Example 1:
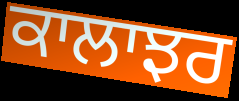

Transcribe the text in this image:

ਕਾਲਾਝਰ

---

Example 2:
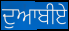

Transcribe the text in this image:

ਦੁਆਬੀਏ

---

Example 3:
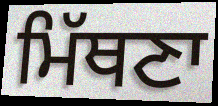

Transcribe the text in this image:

ਮਿੱਥਣਾ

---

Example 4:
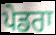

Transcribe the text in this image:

ਪੇਡਰਾ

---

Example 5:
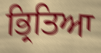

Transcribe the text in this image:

ਭ੍ਰਿਤਿਆ